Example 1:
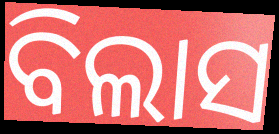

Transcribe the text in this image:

ବିଲାସ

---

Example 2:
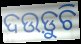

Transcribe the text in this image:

ଦଉଡ଼ୁଚି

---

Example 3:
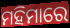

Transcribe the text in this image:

ମହିମାରେ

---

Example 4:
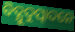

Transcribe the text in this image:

ବିଦ୍ଯୁଦୁତ୍ପାଦନେ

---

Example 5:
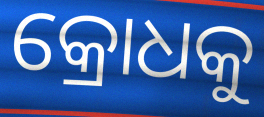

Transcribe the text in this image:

କ୍ରୋଧକୁ